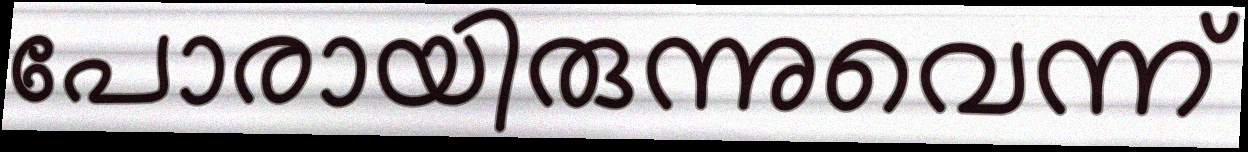
പോരായിരുന്നുവെന്ന്